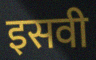
इसवी